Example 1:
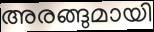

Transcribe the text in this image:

അരങ്ങുമായി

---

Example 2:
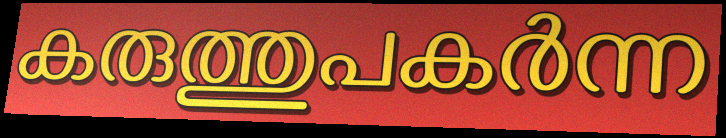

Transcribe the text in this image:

കരുത്തുപകർന്ന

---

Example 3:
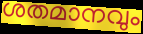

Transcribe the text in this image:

ശതമാനവും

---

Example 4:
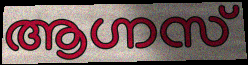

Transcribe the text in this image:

ആഗ്നസ്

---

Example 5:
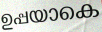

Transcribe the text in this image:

ഉപ്പയാകെ